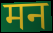
मन